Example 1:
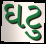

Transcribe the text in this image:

ઘટુ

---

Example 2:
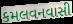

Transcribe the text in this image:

કમલવનવાસી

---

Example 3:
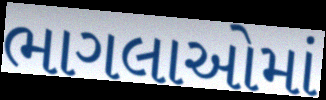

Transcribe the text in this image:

ભાગલાઓમાં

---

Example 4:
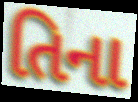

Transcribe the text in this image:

તિના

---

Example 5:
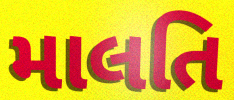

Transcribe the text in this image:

માલતિ